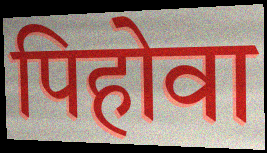
पिहोवा